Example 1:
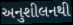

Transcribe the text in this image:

અનુશીલનથી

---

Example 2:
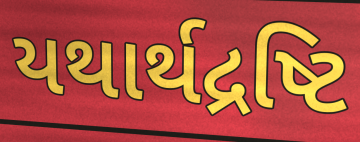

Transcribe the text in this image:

યથાર્થદ્રષ્ટિ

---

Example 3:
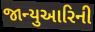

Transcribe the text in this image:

જાન્યુઆરિની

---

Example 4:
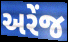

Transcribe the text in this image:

અરેંજ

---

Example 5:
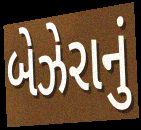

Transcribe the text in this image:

બેઝેરાનું